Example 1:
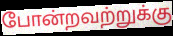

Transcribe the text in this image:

போன்றவற்றுக்கு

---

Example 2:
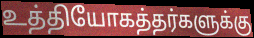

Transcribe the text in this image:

உத்தியோகத்தர்களுக்கு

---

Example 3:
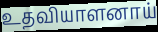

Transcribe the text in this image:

உதவியாளனாய்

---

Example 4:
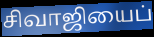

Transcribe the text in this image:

சிவாஜியைப்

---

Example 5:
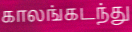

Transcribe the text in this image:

காலங்கடந்து